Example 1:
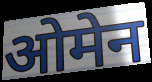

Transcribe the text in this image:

ओमेन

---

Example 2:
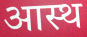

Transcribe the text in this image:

आस्थ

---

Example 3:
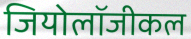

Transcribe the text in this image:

जियोलॉजीकल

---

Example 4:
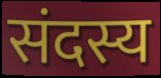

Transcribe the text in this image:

संदस्य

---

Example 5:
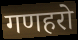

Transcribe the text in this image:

गणहरो